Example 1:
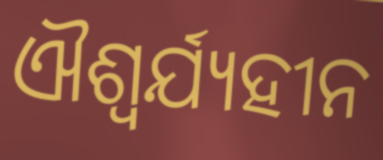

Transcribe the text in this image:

ଐଶ୍ଵର୍ଯ୍ୟହୀନ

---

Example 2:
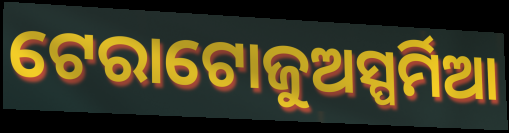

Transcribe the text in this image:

ଟେରାଟୋଜୁଅସ୍ପର୍ମିଆ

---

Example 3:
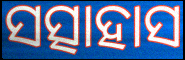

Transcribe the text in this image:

ସତ୍ସାହାସ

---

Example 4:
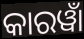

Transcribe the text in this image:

କାରୱାଁ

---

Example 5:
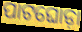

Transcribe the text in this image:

ପାଟଘୋଡ଼ା